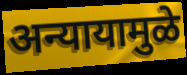
अन्यायामुळे